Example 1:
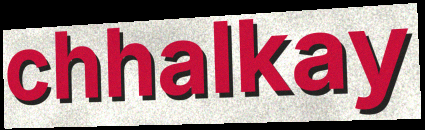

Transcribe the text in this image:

chhalkay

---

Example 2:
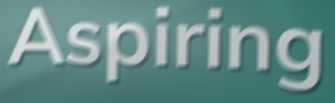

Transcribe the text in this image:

Aspiring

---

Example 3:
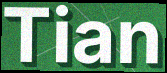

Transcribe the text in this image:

Tian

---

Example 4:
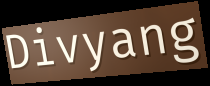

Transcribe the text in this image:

Divyang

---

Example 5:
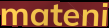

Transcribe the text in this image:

mateni